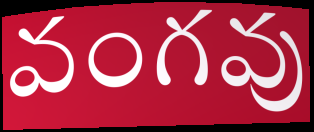
వంగవు